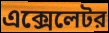
এক্সেলেটর